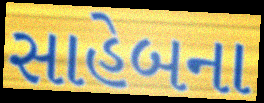
સાહેબના